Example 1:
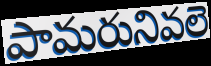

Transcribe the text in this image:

పామరునివలె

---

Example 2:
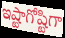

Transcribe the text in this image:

ఇష్టాగోష్టిగా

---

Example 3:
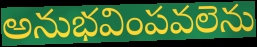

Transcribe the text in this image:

అనుభవింపవలెను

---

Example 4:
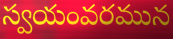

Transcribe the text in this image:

స్వయంవరమున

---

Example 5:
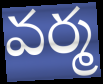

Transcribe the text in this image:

వర్మ